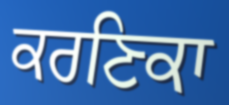
ਕਰਣਿਕਾ